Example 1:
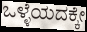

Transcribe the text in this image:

ಒಳ್ಳೆಯದಕ್ಕೇ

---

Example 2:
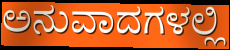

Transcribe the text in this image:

ಅನುವಾದಗಳಲ್ಲಿ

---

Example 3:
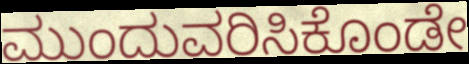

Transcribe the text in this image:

ಮುಂದುವರಿಸಿಕೊಂಡೇ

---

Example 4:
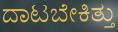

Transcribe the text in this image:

ದಾಟಬೇಕಿತ್ತು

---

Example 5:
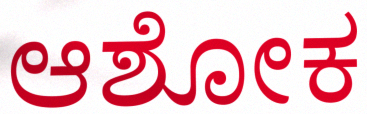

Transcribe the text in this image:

ಆಶೋಕ